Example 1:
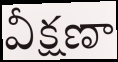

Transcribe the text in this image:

వీక్షణా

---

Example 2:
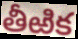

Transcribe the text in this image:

తీఱిక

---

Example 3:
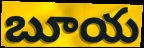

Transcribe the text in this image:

బూయ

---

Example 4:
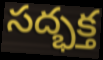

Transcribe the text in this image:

సద్భక్త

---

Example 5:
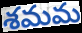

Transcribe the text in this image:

శమమ